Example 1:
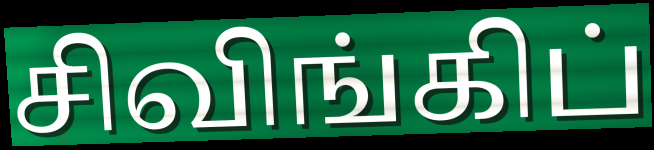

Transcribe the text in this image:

சிவிங்கிப்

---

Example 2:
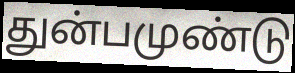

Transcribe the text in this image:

துன்பமுண்டு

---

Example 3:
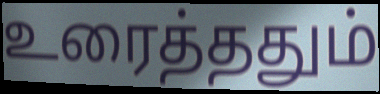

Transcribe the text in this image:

உரைத்ததும்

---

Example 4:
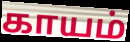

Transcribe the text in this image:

காயம்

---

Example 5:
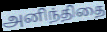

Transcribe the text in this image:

அனிந்திதை